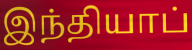
இந்தியாப்